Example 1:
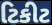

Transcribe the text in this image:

ટિકીટ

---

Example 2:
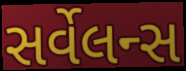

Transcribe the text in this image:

સર્વેલન્સ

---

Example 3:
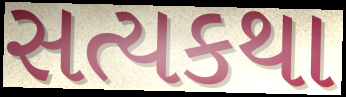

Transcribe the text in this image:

સત્યકથા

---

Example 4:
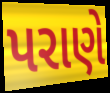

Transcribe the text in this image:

પરાણે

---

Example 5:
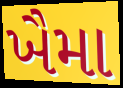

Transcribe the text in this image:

ખૈમા